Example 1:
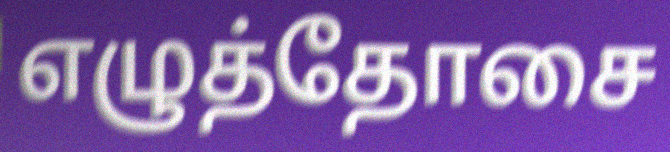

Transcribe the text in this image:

எழுத்தோசை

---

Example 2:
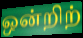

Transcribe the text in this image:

ஒன்றிற்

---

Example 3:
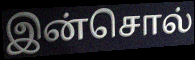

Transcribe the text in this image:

இன்சொல்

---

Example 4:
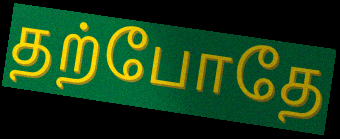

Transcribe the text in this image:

தற்போதே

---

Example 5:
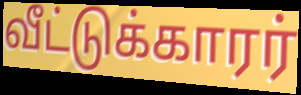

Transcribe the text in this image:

வீட்டுக்காரர்